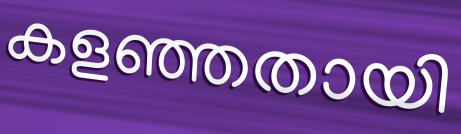
കളഞ്ഞതായി